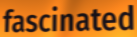
fascinated